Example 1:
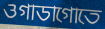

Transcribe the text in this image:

ওগাডাগোতে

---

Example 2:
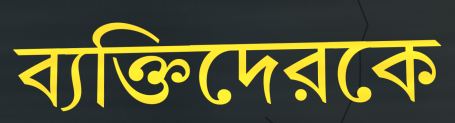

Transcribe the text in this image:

ব্যক্তিদেরকে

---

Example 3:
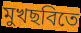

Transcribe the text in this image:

মুখছবিতে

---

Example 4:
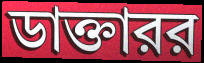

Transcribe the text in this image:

ডাক্তারর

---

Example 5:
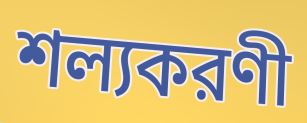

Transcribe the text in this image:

শল্যকরণী